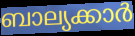
ബാല്യക്കാർ